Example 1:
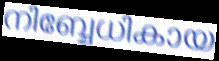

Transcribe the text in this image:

നിബ്ബേധികായ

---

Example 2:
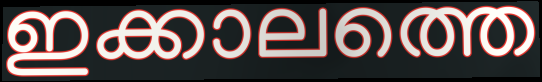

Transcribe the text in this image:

ഇക്കാലത്തെ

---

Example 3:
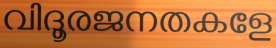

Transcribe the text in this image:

വിദൂരജനതകളേ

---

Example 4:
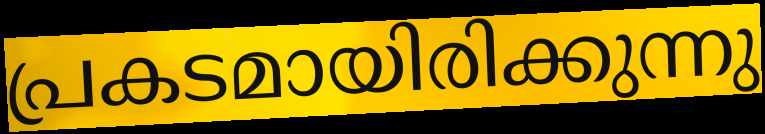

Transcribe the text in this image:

പ്രകടമായിരിക്കുന്നു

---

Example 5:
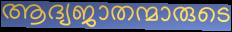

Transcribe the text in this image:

ആദ്യജാതന്മാരുടെ